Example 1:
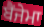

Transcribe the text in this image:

ਬੈਂਜੇਮਾ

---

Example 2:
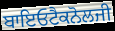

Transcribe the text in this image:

ਬਾਇਓਟੈਕਨੋਲਜੀ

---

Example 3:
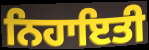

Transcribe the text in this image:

ਨਿਹਾਇਤੀ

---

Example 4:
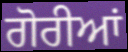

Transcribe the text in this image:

ਗੋਰੀਆਂ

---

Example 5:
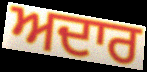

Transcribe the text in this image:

ਅਦਾਰ